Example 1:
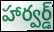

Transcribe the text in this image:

హార్వర్డ్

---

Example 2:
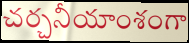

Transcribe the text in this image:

చర్చనీయాంశంగా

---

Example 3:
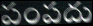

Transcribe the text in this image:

పంపదు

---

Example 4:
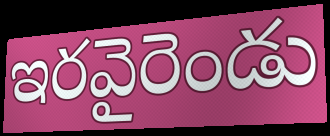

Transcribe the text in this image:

ఇరవైరెండు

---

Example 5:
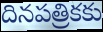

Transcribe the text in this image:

దినపత్రికకు